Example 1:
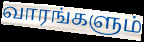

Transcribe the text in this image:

வாரங்களும்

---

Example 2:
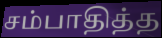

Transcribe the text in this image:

சம்பாதித்த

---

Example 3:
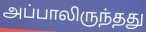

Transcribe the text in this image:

அப்பாலிருந்தது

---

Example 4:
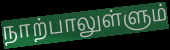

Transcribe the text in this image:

நாற்பாலுள்ளும்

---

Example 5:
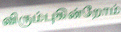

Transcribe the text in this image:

விரும்புகின்றோம்